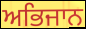
ਅਭਿਜਾਨ